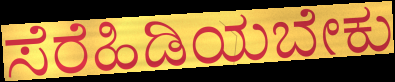
ಸೆರೆಹಿಡಿಯಬೇಕು